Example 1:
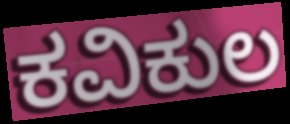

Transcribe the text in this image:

ಕವಿಕುಲ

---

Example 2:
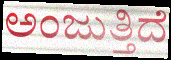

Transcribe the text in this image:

ಅಂಜುತ್ತಿದೆ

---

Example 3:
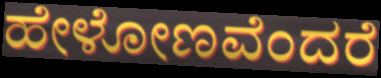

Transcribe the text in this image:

ಹೇಳೋಣವೆಂದರೆ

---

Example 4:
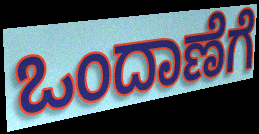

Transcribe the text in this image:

ಒಂದಾಣೆಗೆ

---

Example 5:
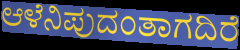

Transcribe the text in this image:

ಆಳೆನಿಪುದಂತಾಗದಿರೆ